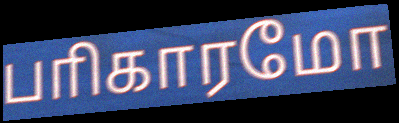
பரிகாரமோ